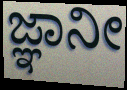
ಜ್ಞಾನೀ